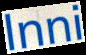
Inni